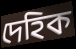
দেহিক